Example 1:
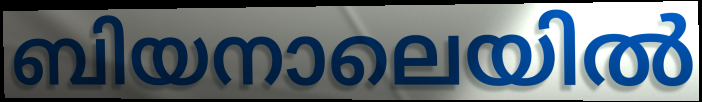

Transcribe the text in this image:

ബിയനാലെയിൽ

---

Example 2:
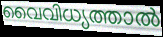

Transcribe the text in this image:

വൈവിധ്യത്താൽ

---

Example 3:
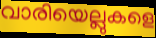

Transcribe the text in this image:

വാരിയെല്ലുകളെ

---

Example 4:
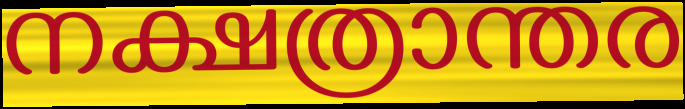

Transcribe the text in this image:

നക്ഷത്രാന്തര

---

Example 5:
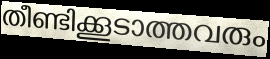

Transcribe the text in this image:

തീണ്ടിക്കൂടാത്തവരും